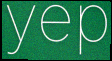
yep